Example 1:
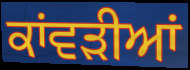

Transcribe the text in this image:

ਕਾਂਵੜੀਆਂ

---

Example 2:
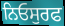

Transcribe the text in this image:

ਨਿਓਸੁਰਫ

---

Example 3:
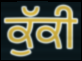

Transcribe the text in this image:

ਕੁੱਕੀ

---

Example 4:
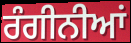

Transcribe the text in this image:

ਰੰਗੀਨੀਆਂ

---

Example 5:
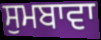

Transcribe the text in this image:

ਸੁਮਬਾਵਾ